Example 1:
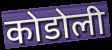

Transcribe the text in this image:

कोडोली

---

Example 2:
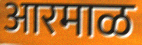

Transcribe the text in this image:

आरमाळ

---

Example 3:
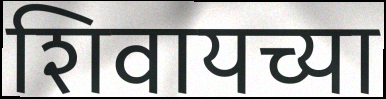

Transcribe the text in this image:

शिवायच्या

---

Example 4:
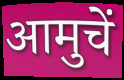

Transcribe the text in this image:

आमुचें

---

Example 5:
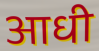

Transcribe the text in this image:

आधी